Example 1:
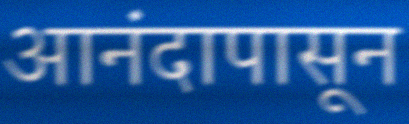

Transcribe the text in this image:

आनंदापासून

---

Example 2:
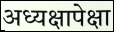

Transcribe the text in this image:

अध्यक्षापेक्षा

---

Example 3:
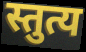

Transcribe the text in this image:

स्तुत्य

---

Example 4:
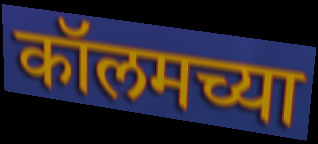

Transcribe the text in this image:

कॉलमच्या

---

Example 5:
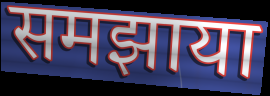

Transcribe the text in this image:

समझाया